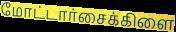
மோட்டார்சைக்கிளை